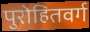
पुरोहितवर्ग